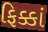
ફિક્કાં